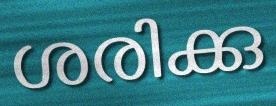
ശരിക്കു